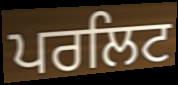
ਪਰਲਿਟ